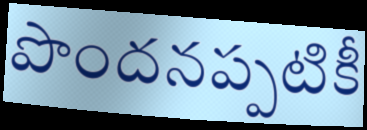
పొందనప్పటికీ